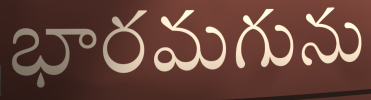
భారమగును